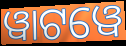
ୱାଟୱେ